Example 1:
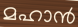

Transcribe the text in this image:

മഹാൻ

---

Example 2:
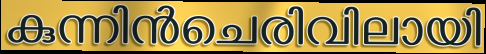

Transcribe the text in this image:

കുന്നിൻചെരിവിലായി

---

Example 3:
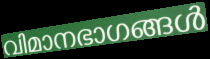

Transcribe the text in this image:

വിമാനഭാഗങ്ങൾ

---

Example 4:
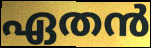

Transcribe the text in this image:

ഏതൻ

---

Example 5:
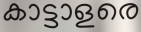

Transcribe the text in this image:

കാട്ടാളരെ